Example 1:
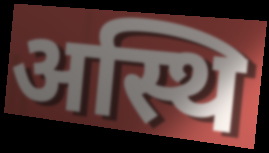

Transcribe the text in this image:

अस्थि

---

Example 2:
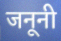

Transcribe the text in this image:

जनूनी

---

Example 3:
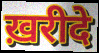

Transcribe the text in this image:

ख़रीदे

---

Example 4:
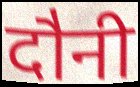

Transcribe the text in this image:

दौनी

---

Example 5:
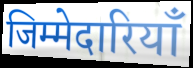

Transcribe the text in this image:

जिम्मेदारियॉं